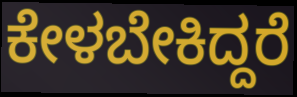
ಕೇಳಬೇಕಿದ್ದರೆ